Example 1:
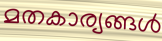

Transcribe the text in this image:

മതകാര്യങ്ങൾ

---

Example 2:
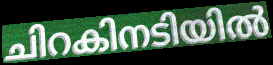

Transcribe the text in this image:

ചിറകിനടിയിൽ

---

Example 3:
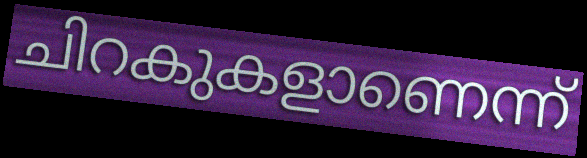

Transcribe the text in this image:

ചിറകുകളാണെന്ന്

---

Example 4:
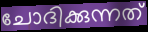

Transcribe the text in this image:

ചോദിക്കുന്നത്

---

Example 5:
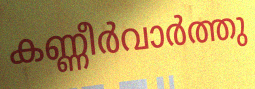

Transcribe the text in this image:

കണ്ണീർവാർത്തു